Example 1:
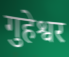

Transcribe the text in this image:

गुहेश्वर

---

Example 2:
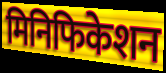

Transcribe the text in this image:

मिनिफिकेशन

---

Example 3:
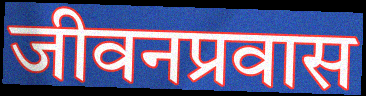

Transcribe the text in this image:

जीवनप्रवास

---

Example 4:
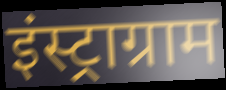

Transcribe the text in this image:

इंस्ट्राग्राम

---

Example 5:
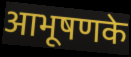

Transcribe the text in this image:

आभूषणके